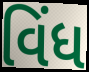
વિંધ